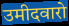
उमीदवारो